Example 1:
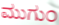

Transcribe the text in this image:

ಮುಗುಂ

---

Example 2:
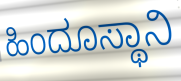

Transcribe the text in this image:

ಹಿಂದೂಸ್ಥಾನಿ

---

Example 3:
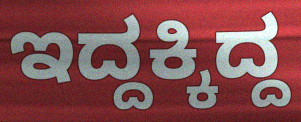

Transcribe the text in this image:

ಇದ್ದಕ್ಕಿದ್ದ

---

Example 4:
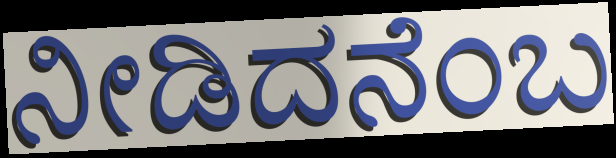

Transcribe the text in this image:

ನೀಡಿದನೆಂಬ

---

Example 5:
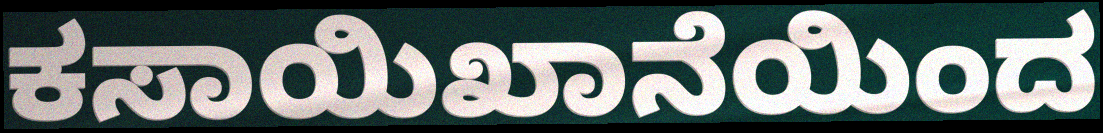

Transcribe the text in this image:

ಕಸಾಯಿಖಾನೆಯಿಂದ